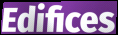
Edifices